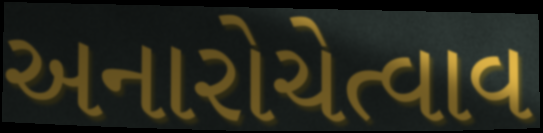
અનારોચેત્વાવ